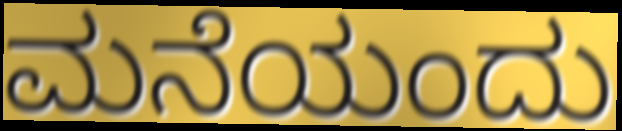
ಮನೆಯಂದು